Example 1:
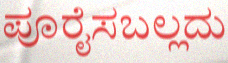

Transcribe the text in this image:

ಪೂರೈಸಬಲ್ಲದು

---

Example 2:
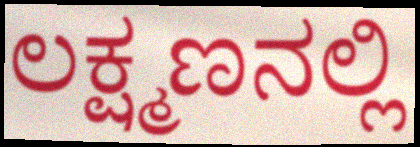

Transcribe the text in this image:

ಲಕ್ಷ್ಮಣನಲ್ಲಿ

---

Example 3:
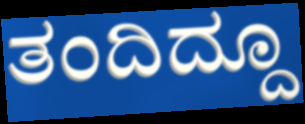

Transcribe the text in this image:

ತಂದಿದ್ದೂ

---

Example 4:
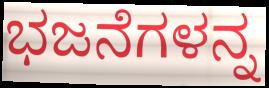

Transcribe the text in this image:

ಭಜನೆಗಳನ್ನ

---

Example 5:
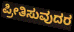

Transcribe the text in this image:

ಪ್ರೀತಿಸುವುದರ